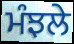
ਮੰਝਲੇ